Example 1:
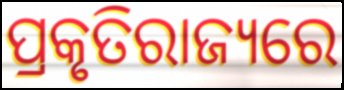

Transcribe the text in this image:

ପ୍ରକୃତିରାଜ୍ୟରେ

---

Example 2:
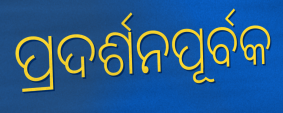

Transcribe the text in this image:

ପ୍ରଦର୍ଶନପୂର୍ବକ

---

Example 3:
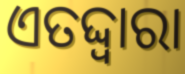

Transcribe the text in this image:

ଏତଦ୍ଦ୍ୱାରା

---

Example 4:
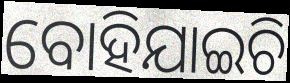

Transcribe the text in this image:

ବୋହିଯାଇଚି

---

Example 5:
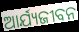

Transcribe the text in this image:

ଆର୍ଯ୍ୟଜୀବନ